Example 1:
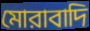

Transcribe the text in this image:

মোরাবাদি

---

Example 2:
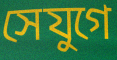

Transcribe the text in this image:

সেযুগে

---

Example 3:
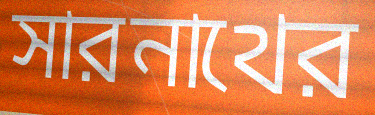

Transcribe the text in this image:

সারনাথের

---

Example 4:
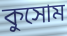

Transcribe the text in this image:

কুসোম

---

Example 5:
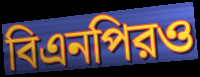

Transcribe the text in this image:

বিএনপিরও